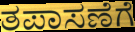
ತಪಾಸಣೆಗೆ